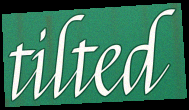
tilted